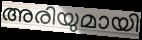
അരിയുമായി